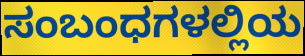
ಸಂಬಂಧಗಳಲ್ಲಿಯ